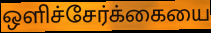
ஒளிச்சேர்க்கையை